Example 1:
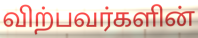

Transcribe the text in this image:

விற்பவர்களின்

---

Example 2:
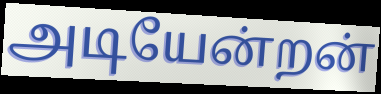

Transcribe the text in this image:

அடியேன்றன்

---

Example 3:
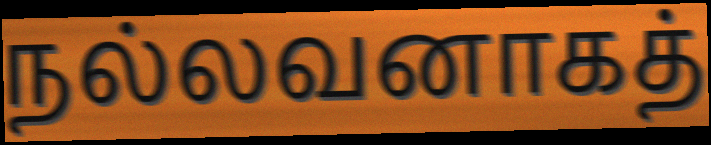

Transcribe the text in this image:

நல்லவனாகத்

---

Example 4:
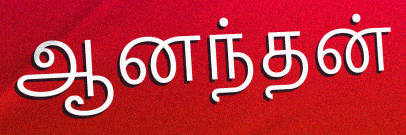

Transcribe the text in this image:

ஆனந்தன்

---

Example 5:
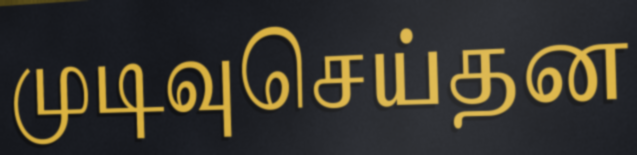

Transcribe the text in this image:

முடிவுசெய்தன